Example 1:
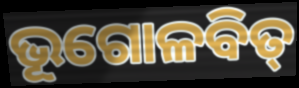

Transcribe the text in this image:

ଭୂଗୋଳବିତ୍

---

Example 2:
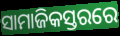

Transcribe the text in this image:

ସାମାଜିକସ୍ତରରେ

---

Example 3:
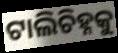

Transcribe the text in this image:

ଟାଲିଚିହ୍ନକୁ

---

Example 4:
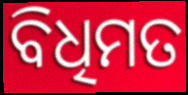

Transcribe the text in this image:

ବିଧିମତ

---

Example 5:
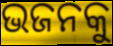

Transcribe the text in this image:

ଭଜନକୁ